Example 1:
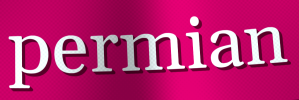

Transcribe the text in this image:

permian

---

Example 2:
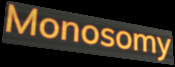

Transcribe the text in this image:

Monosomy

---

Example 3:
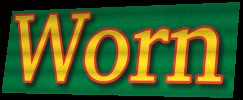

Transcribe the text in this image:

Worn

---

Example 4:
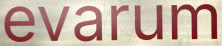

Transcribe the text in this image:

evarum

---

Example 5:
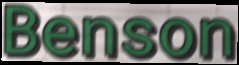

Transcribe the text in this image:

Benson